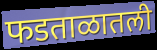
फडताळातली